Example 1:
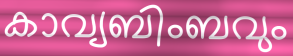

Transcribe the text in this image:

കാവ്യബിംബവും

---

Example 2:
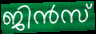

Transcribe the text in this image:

ജിൻസ്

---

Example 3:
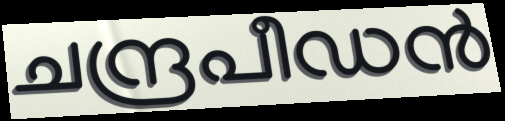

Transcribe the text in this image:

ചന്ദ്രപീഡൻ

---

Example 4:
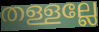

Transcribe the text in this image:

തള്ളല്ലേ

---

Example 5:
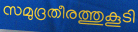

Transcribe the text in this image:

സമുദ്രതീരത്തുകൂടി